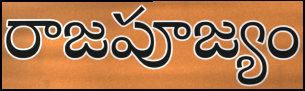
రాజపూజ్యం